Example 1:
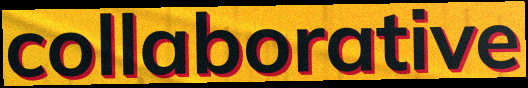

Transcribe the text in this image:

collaborative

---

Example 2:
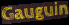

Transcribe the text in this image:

Gauguin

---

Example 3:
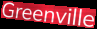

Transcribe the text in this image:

Greenville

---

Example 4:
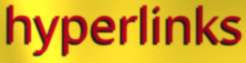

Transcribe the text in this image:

hyperlinks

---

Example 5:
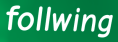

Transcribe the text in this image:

follwing